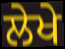
ਲੇਖੇ